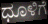
ಧೂಳಿಗೆ